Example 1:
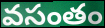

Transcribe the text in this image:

వసంతం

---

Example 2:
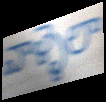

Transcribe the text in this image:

వాళ్ళెలా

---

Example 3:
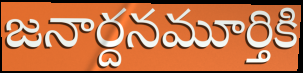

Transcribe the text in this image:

జనార్దనమూర్తికి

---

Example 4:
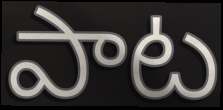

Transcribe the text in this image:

పాట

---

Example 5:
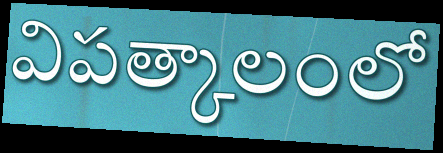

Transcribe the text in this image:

విపత్కాలంలో